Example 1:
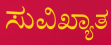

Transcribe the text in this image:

ಸುವಿಖ್ಯಾತ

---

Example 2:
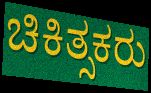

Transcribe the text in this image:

ಚಿಕಿತ್ಸಕರು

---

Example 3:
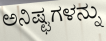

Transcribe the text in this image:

ಅನಿಷ್ಟಗಳನ್ನು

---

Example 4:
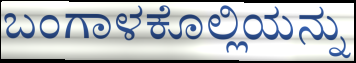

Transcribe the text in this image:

ಬಂಗಾಳಕೊಲ್ಲಿಯನ್ನು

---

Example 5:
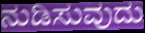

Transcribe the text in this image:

ನುಡಿಸುವುದು